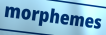
morphemes